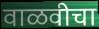
वाळवीचा